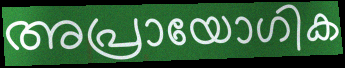
അപ്രായോഗിക